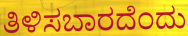
ತಿಳಿಸಬಾರದೆಂದು